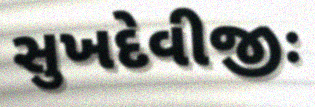
સુખદેવીજીઃ